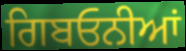
ਗਿਬਓਨੀਆਂ